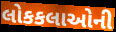
લોકકલાઓની